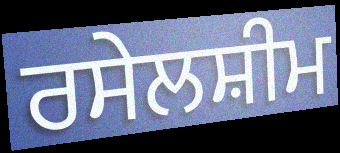
ਰਸੇਲਸ਼ੀਮ